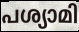
പശ്യാമി